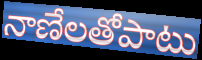
నాణేలతోపాటు